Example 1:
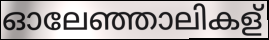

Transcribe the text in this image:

ഓലേഞ്ഞാലികള്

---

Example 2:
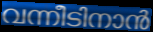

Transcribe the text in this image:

വന്നീടിനാൻ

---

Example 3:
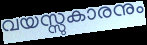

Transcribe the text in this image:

വയസ്സുകാരനും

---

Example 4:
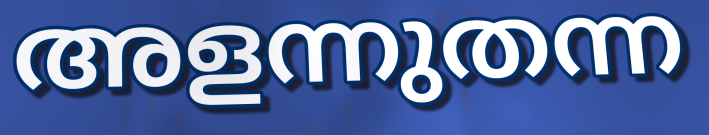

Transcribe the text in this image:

അളന്നുതന്ന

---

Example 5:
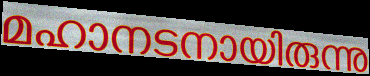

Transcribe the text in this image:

മഹാനടനായിരുന്നു